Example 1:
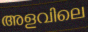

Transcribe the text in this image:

അളവിലെ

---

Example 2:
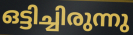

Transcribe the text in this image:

ഒട്ടിച്ചിരുന്നു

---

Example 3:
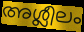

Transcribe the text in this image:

അശ്ലീലം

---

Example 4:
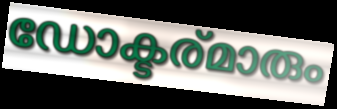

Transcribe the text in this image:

ഡോക്ടര്മാരും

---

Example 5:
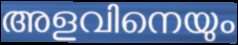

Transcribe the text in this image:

അളവിനെയും